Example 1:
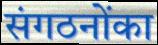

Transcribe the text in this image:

संगठनोंका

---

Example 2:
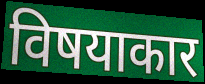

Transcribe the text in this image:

विषयाकार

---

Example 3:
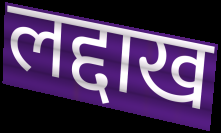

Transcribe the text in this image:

लद्दाख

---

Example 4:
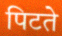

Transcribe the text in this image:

पिटते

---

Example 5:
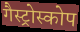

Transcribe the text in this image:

गैस्ट्रोस्कोप